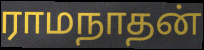
ராமநாதன்